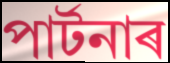
পাৰ্টনাৰ